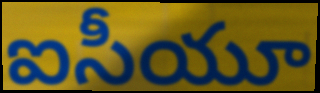
ఐసీయూ